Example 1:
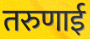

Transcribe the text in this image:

तरुणाई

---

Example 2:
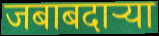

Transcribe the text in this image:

जबाबदाऱ्या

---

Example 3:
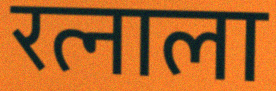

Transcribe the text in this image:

रत्नाला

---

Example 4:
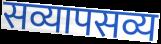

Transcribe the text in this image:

सव्यापसव्य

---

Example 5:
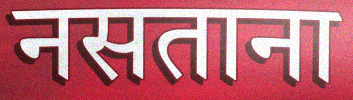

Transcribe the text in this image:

नसताना